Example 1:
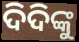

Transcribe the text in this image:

ଦିଦିଙ୍କୁ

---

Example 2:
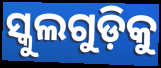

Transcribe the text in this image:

ସ୍କୁଲଗୁଡ଼ିକୁ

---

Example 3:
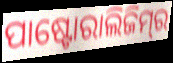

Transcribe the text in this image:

ପାଷ୍ଟୋରାଲିଜିମ୍‌ର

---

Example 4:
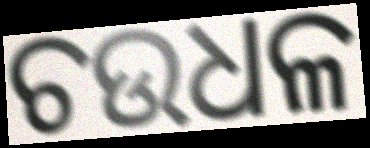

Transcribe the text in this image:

ଚଉଧଳ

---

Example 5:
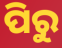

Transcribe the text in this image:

ପିରୁ